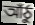
আঁঠু